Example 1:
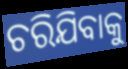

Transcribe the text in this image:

ଚରିଯିବାକୁ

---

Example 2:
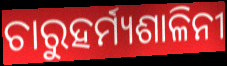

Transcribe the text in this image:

ଚାରୁହର୍ମ୍ୟଶାଳିନୀ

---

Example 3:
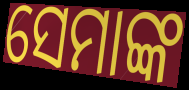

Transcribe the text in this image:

ସେମାଙ୍କ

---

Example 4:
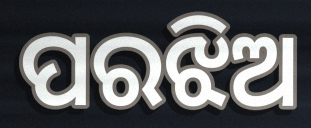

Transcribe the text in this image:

ପରଝିଅ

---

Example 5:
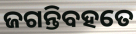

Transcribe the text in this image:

ଜଗନ୍ତିବହତେ